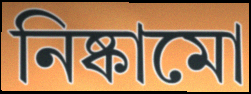
নিষ্কামো